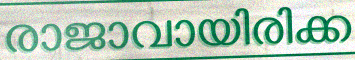
രാജാവായിരിക്ക